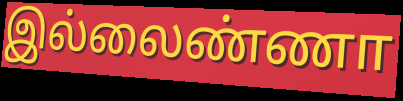
இல்லைண்ணா